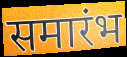
समारंभ